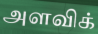
அளவிக்